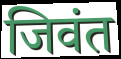
जिवंत